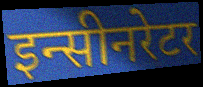
इन्सीनरेटर